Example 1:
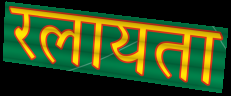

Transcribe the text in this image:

रलायता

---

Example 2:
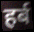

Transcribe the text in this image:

हर्ब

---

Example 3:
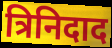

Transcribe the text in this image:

त्रिनिदाद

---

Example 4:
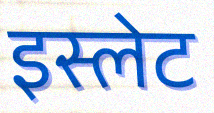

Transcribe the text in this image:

इस्लेट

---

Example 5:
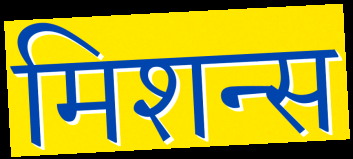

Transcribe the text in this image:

मिशन्स